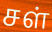
சள்